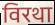
विरथा